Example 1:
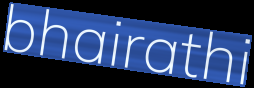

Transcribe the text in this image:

bhairathi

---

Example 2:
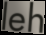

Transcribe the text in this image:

leh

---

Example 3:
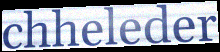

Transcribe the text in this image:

chheleder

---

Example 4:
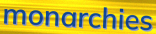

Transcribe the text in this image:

monarchies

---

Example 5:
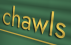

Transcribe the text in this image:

chawls